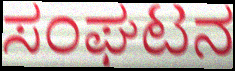
ಸಂಘಟನ